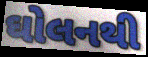
ઘોલનથી